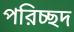
পরিচ্ছদ